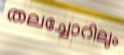
തലച്ചോറിലും